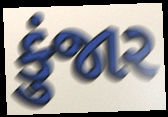
કુંજાર